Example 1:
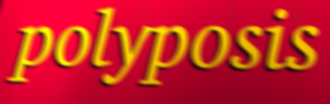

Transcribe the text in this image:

polyposis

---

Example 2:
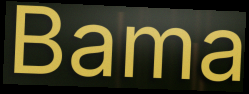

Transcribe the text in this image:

Bama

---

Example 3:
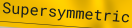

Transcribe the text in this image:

Supersymmetric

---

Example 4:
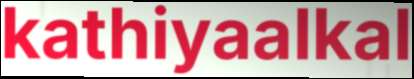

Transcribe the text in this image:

kathiyaalkal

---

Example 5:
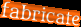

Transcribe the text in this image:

fabricate